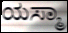
ಯಸ್ಮಾ